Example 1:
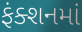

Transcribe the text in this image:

ફંક્શનમાં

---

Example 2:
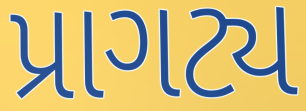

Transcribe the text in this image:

પ્રાગટ્ય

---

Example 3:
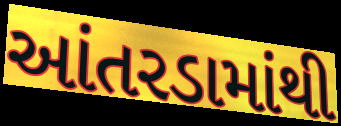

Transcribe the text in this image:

આંતરડામાંથી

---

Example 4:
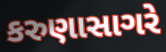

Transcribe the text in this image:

કરુણાસાગરે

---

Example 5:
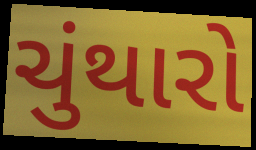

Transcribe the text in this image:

ચુંથારો